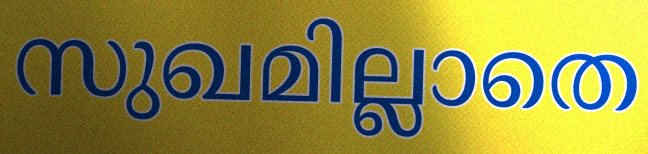
സുഖമില്ലാതെ